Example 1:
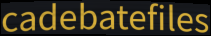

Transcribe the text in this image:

cadebatefiles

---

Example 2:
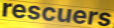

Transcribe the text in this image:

rescuers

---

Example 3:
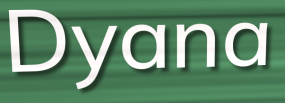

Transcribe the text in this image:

Dyana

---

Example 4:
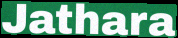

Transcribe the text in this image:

Jathara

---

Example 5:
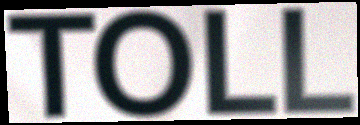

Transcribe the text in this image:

TOLL